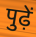
पुढ़ें